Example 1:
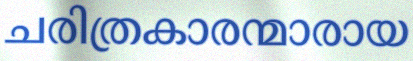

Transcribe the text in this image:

ചരിത്രകാരന്മാരായ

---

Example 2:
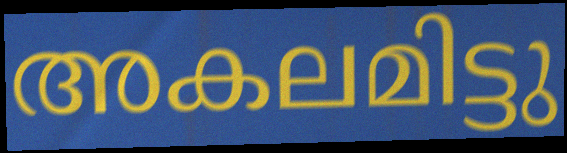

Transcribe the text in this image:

അകലമിട്ടു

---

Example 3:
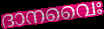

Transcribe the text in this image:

ദാനവൈഃ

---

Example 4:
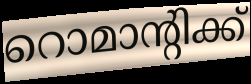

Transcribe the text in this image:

റൊമാന്റിക്ക്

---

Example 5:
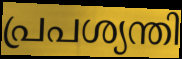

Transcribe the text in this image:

പ്രപശ്യന്തി